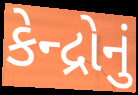
કેન્દ્રોનું